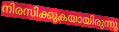
നിരസിക്കുകയായിരുന്നു